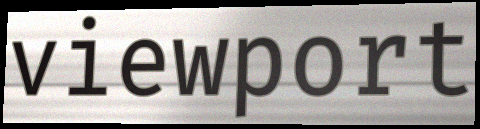
viewport